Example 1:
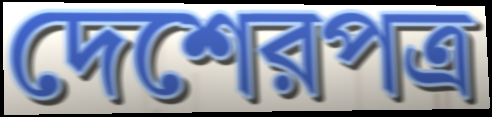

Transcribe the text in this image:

দেশেরপত্র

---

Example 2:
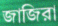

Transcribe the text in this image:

জাজিরা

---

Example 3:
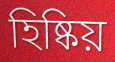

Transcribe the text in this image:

হিষ্কিয়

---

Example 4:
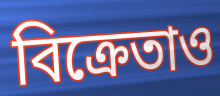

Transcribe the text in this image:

বিক্রেতাও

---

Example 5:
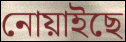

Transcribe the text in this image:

নোয়াইছে